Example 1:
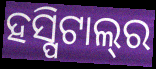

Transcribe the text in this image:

ହସ୍ପିଟାଲ୍‌ର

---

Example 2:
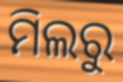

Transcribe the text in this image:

ମିଲରୁ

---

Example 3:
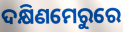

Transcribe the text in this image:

ଦକ୍ଷିଣମେରୁରେ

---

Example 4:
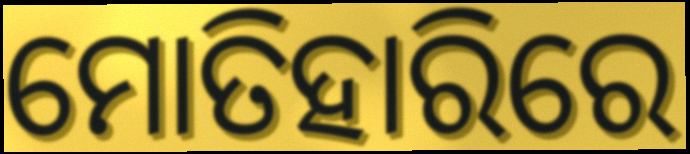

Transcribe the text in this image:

ମୋତିହାରିରେ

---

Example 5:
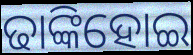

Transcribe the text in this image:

ଢାଙ୍କିହୋଇ